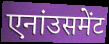
एनांउसमेंट